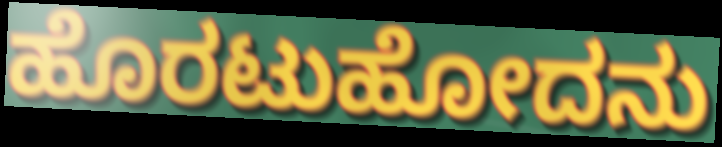
ಹೊರಟುಹೋದನು